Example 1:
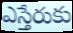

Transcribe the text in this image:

ఎస్తేరుకు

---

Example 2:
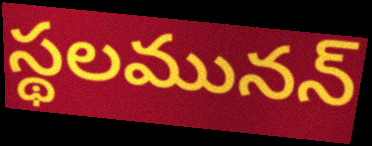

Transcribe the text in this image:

స్థలమునన్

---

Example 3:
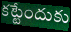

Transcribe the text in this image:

కట్టేందుకు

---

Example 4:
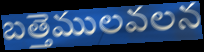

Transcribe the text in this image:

బత్తెములవలన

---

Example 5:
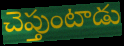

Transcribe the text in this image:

చెప్తుంటాడు